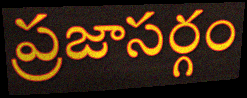
ప్రజాసర్గం